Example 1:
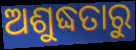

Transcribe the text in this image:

ଅଶୁଦ୍ଧତାରୁ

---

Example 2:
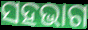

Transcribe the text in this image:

ସହଭାଗ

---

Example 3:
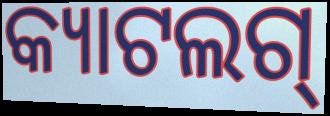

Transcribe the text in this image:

କ୍ୟାଟଲଗ୍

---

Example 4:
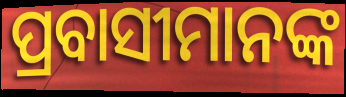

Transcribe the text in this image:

ପ୍ରବାସୀମାନଙ୍କ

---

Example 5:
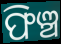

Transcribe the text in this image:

ଫିଞ୍ଚ